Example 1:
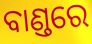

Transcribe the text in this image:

ବାଣ୍ଡରେ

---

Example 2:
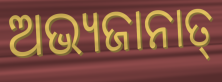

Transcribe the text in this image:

ଅଭ୍ୟଜାନାତ୍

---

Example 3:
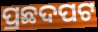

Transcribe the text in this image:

ପ୍ରଛଦପଟ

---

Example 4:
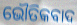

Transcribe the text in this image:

ଭୌତିକବାଦ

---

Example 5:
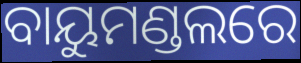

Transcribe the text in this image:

ବାୟୁମଣ୍ଡଲରେ